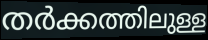
തർക്കത്തിലുള്ള